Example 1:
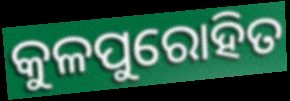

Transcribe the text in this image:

କୁଳପୁରୋହିତ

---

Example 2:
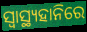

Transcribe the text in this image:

ସ୍ୱାସ୍ଥ୍ୟହାନିରେ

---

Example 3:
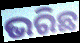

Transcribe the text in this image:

ଭରିଛ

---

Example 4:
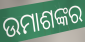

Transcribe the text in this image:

ଉମାଶଙ୍କର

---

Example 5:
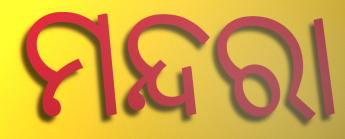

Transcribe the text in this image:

ମନ୍ଦରା